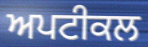
ਅਪਟੀਕਲ